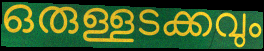
ഒരുള്ളടക്കവും